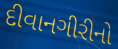
દીવાનગીરીનો